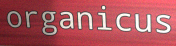
organicus